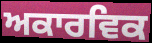
ਅਕਾਰਵਿਕ